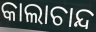
କାଲାଚାନ୍ଦ